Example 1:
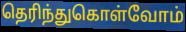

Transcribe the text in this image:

தெரிந்துகொள்வோம்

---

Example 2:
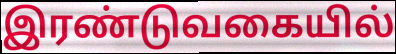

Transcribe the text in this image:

இரண்டுவகையில்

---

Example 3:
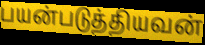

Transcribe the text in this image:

பயன்படுத்தியவன்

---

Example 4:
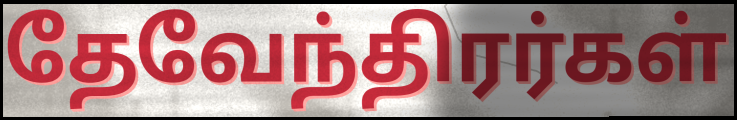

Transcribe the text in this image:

தேவேந்திரர்கள்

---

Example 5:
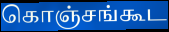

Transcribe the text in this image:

கொஞ்சங்கூட